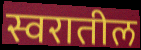
स्वरातील